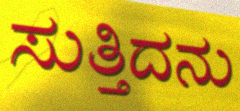
ಸುತ್ತಿದನು